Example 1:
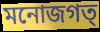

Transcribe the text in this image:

মনোজগত্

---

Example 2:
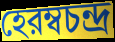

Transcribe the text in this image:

হেরম্বচন্দ্র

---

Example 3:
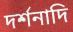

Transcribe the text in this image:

দর্শনাদি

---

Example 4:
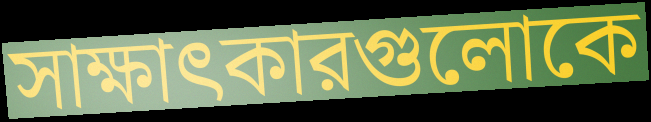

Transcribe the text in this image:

সাক্ষাৎকারগুলোকে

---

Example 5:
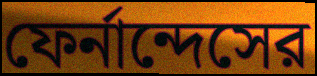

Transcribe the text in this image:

ফের্নান্দেসের